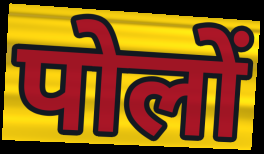
पोलों